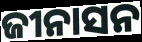
ଜୀନାସନ